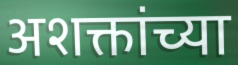
अशक्तांच्या